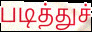
படித்துச்